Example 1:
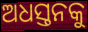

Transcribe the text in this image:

ଅଧସ୍ତନକୁ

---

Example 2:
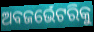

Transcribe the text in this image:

ଅବଜର୍ଭେଟରିକୁ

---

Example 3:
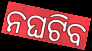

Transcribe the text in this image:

ନଘଟିବ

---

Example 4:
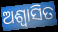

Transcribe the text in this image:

ଅଶ୍ୱାସିତ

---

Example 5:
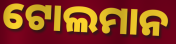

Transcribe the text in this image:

ଟୋଲମାନ